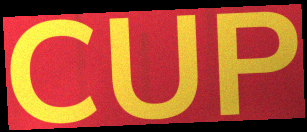
CUP